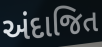
અંદાજિત